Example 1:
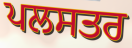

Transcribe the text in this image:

ਪਲਸਤਰ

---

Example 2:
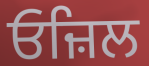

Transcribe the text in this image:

ਓਜ਼ਿਲ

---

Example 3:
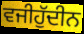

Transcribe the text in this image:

ਵਜੀਹੁੱਦੀਨ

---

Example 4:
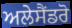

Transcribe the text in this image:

ਅਲੇਸੈਂਡਰੋ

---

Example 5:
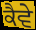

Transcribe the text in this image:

ਕੈਵੇ